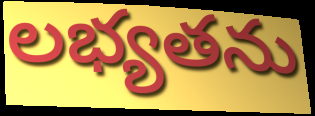
లభ్యతను